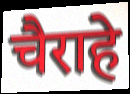
चैराहे